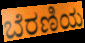
ಬೆರಣಿಯ